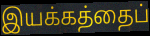
இயக்கத்தைப்